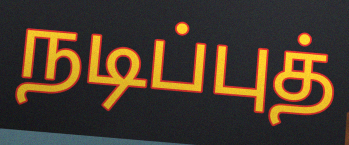
நடிப்புத்